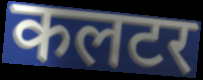
कलटर